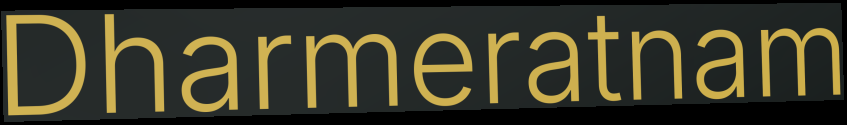
Dharmeratnam